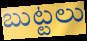
బుట్టలు